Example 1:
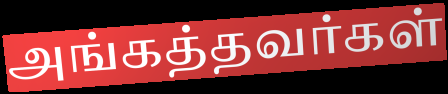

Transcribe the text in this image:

அங்கத்தவர்கள்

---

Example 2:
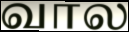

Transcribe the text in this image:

வால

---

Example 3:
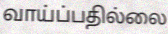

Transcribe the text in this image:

வாய்ப்பதில்லை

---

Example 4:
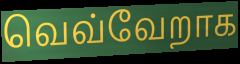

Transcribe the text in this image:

வெவ்வேறாக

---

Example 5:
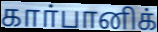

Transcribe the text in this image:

கார்பானிக்